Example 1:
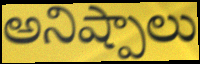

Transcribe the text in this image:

అనిష్పాలు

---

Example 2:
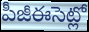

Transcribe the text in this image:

పీజీఈసెట్లో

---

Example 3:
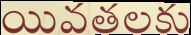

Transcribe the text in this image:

యివతలకు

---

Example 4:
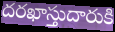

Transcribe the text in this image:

దరఖాస్తుదారుకి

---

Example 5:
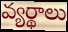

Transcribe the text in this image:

వ్యర్థాలు